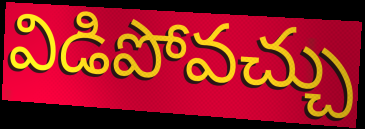
విడిపోవచ్చు